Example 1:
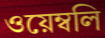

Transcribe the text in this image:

ওয়েম্বলি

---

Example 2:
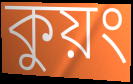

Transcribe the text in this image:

কুয়ং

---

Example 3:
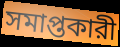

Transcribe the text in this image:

সমাপ্তকারী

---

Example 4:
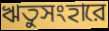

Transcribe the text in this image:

ঋতুসংহারে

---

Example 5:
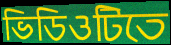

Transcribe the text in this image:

ভিডিওটিতে